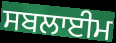
ਸਬਲਾਈਮ